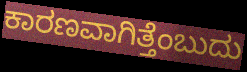
ಕಾರಣವಾಗಿತ್ತೆಂಬುದು